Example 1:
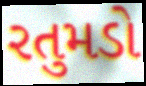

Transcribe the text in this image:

રતુમડો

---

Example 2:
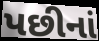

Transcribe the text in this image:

પછીનાં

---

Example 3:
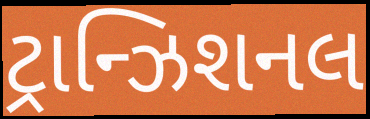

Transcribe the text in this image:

ટ્રાન્ઝિશનલ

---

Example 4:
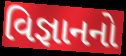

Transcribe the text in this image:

વિજ્ઞાનનો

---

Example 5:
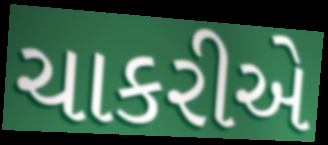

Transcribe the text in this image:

ચાકરીએ